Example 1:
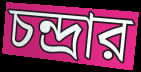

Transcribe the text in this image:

চন্দ্রার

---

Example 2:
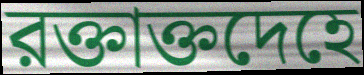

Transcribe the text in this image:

রক্তাক্তদেহে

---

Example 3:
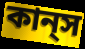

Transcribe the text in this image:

কান্‌স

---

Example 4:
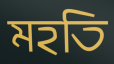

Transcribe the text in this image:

মহতি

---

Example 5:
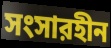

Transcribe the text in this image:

সংসারহীন